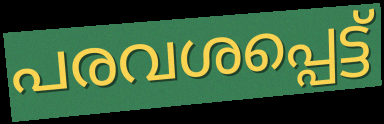
പരവശപ്പെട്ട്